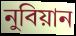
নুবিয়ান